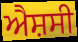
ਐਸ਼ਸੀ